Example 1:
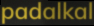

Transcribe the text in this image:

padalkal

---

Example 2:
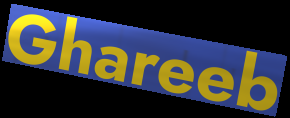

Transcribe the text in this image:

Ghareeb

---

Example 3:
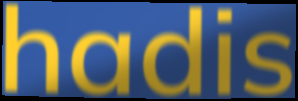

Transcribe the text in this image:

hadis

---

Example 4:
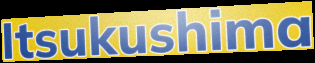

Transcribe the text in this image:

Itsukushima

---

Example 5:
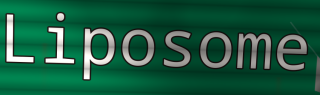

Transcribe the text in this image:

Liposome